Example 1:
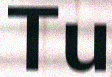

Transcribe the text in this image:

Tu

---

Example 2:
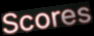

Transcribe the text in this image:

Scores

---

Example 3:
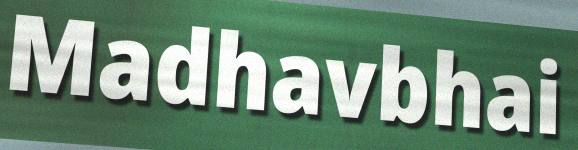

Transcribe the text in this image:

Madhavbhai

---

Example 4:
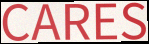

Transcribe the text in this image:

CARES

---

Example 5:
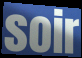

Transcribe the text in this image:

soir